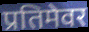
प्रतिमेवर